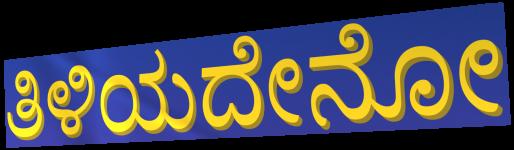
ತಿಳಿಯದೇನೋ